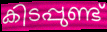
കിടപ്പുണ്ട്